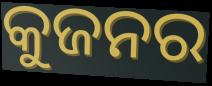
କୁଜନର